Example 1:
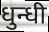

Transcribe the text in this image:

धुन्धी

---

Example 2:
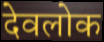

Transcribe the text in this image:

देवलोक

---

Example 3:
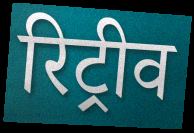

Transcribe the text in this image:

रिट्रीव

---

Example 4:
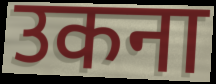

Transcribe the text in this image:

उकना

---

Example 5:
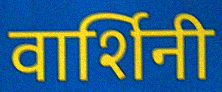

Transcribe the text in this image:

वार्शिनी